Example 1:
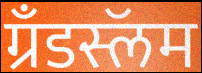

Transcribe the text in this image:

ग्रँडस्लॅम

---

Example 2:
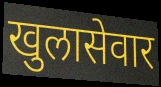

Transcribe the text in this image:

खुलासेवार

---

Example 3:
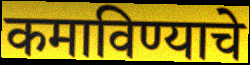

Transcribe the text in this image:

कमाविण्याचे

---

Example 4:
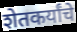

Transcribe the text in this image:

शेतकर्यांचे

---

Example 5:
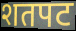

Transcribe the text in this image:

शतपट